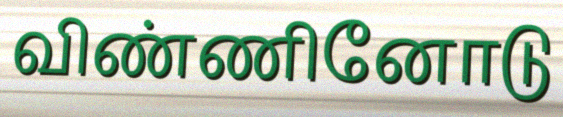
விண்ணினோடு